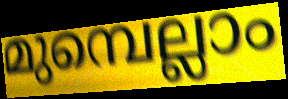
മുമ്പെല്ലാം